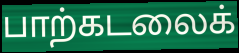
பாற்கடலைக்